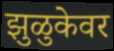
झुळुकेवर